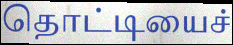
தொட்டியைச்